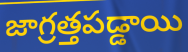
జాగ్రత్తపడ్డాయి